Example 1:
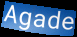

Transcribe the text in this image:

Agade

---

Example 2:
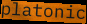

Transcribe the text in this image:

platonic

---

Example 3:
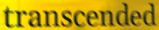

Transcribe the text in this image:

transcended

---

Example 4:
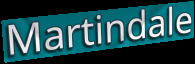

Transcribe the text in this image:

Martindale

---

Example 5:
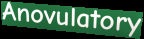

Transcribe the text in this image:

Anovulatory